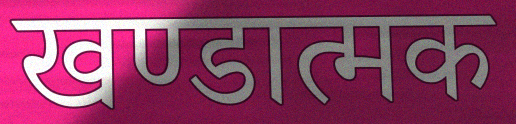
खण्डात्मक